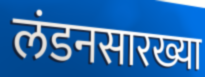
लंडनसारख्या